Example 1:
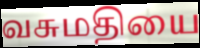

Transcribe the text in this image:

வசுமதியை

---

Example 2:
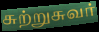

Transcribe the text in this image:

சுற்றுசுவர்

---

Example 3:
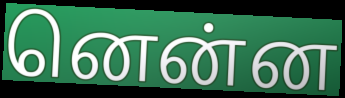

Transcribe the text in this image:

னென்ன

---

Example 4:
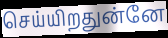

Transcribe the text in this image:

செய்யிறதுன்னே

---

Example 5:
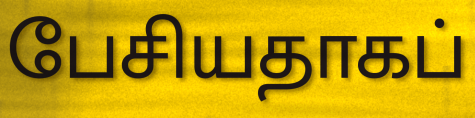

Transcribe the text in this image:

பேசியதாகப்